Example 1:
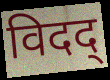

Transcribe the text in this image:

विदद्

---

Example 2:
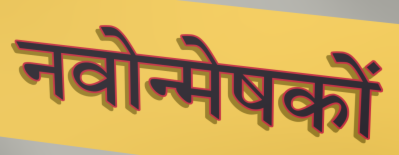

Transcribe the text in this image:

नवोन्‍मेषकों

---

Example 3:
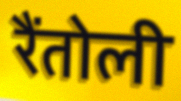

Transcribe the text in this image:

रैंतोली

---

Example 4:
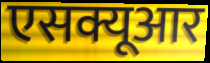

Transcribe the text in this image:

एसक्यूआर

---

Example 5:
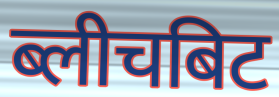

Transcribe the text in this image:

ब्लीचबिट